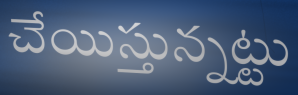
చేయిస్తున్నట్టు